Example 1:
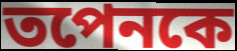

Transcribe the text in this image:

তপেনকে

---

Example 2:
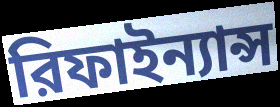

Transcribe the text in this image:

রিফাইন্যান্স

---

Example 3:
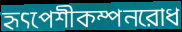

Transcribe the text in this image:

হৃৎপেশীকম্পনরোধ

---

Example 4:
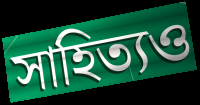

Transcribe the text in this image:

সাহিত্যও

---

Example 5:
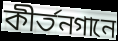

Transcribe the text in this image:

কীর্তনগানে